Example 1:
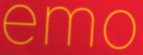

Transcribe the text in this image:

emo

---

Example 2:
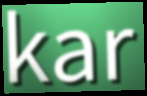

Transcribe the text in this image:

kar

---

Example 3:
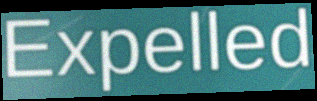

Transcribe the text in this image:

Expelled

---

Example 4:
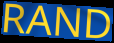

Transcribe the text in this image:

RAND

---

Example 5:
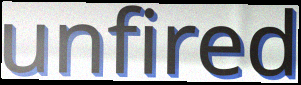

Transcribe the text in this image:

unfired